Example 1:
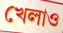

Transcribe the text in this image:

খেলাও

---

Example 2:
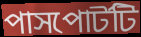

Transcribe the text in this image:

পাসপোর্টটি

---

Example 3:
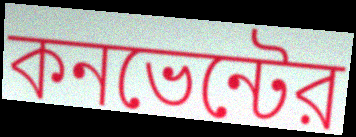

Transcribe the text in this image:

কনভেন্টের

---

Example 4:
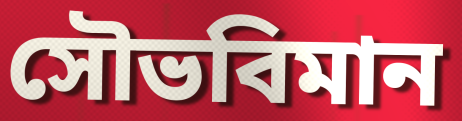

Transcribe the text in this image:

সৌভবিমান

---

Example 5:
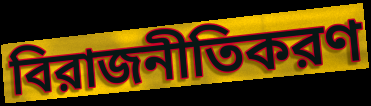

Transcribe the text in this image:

বিরাজনীতিকরণ